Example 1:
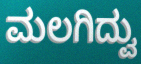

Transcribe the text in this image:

ಮಲಗಿದ್ವು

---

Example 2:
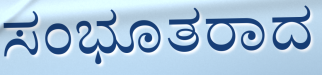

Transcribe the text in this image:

ಸಂಭೂತರಾದ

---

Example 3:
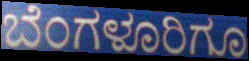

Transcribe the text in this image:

ಬೆಂಗಳೂರಿಗೂ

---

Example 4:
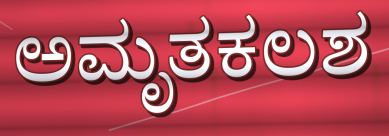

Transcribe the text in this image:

ಅಮೃತಕಲಶ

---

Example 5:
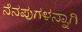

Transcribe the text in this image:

ನೆನಪುಗಳನ್ನಾಗಿ